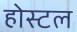
होस्टल